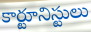
కార్టూనిస్టులు